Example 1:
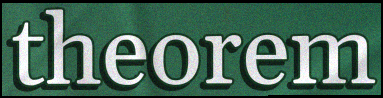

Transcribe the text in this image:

theorem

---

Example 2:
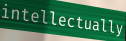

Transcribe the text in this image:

intellectually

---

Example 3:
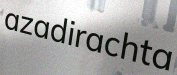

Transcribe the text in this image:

azadirachta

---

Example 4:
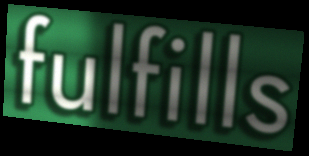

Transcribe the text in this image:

fulfills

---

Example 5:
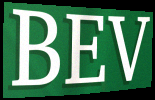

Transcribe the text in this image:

BEV